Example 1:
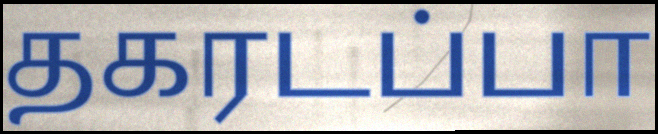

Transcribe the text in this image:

தகரடப்பா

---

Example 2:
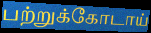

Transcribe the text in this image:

பற்றுக்கோடாய்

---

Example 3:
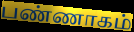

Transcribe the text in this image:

பண்ணாகம்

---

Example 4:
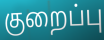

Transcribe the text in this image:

குறைப்பு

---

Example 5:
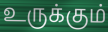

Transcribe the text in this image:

உருக்கும்